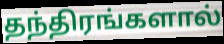
தந்திரங்களால்